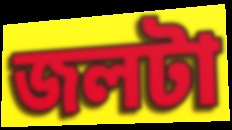
জলটা